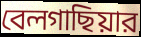
বেলগাছিয়ার